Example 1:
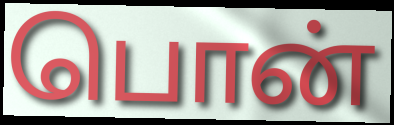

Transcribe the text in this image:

பொன்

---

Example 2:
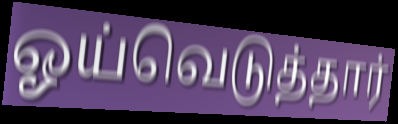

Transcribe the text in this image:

ஓய்வெடுத்தார்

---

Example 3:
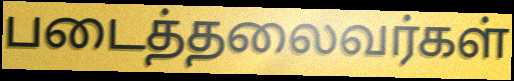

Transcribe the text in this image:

படைத்தலைவர்கள்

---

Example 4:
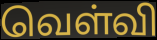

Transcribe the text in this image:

வெள்வி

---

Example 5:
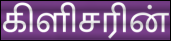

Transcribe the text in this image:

கிளிசரின்